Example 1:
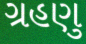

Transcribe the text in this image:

ગ્રહણુ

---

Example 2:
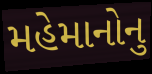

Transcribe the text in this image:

મહેમાનોનુ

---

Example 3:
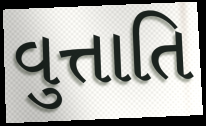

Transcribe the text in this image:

વુત્તાતિ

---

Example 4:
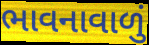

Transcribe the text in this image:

ભાવનાવાળું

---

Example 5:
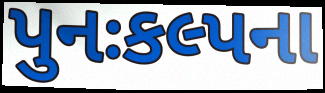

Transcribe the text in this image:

પુનઃકલ્પના